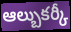
ఆల్బుకర్కీ